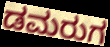
ಡಮರುಗ